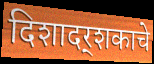
दिशादर्शकाचे